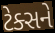
ટેક્સને